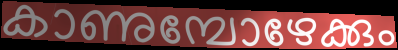
കാണുമ്പോഴേക്കും